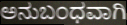
ಅನುಬಂಧವಾಗಿ